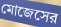
মোজেসের